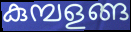
കുമ്പളങ്ങ